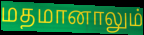
மதமானாலும்